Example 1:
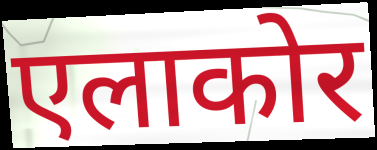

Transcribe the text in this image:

एलाकोर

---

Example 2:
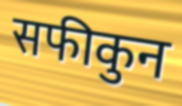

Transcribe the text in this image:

सफीकुन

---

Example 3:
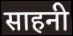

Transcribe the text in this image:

साहनी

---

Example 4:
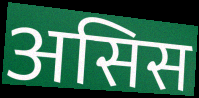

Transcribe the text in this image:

असिस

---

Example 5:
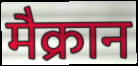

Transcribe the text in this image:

मैक्रान